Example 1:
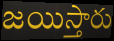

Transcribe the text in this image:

జయిస్తారు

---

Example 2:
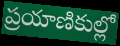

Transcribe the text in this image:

ప్రయాణికుల్లో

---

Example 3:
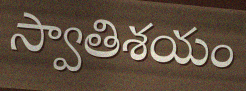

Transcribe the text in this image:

స్వాతిశయం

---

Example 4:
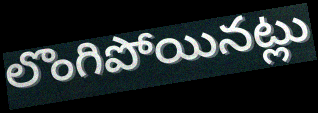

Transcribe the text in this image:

లొంగిపోయినట్లు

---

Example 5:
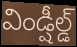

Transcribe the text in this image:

విండ్షీల్డ్